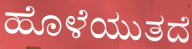
ಹೊಳೆಯುತದೆ